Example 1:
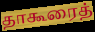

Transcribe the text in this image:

தாகூரைத்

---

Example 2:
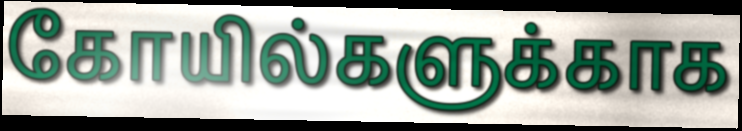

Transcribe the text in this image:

கோயில்களுக்காக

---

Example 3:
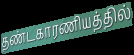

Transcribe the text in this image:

தண்டகாரணியத்தில்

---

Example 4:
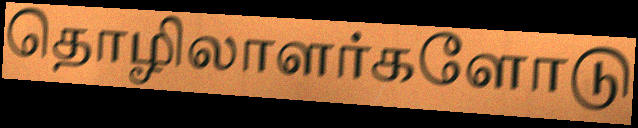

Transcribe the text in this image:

தொழிலாளர்களோடு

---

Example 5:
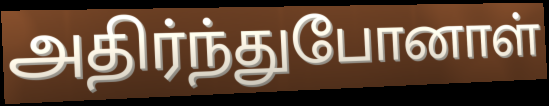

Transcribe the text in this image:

அதிர்ந்துபோனாள்